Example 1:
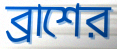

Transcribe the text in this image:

ব্রাশের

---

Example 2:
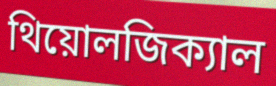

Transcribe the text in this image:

থিয়োলজিক্যাল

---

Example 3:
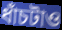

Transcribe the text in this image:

ধাঁচটাও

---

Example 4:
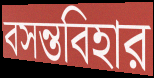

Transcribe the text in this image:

বসন্তবিহার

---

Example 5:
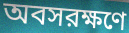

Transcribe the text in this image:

অবসরক্ষণে